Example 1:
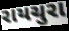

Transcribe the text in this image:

રાયચુરા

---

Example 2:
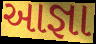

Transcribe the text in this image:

આજ્ઞા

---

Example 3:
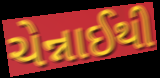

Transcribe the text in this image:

ચેન્નાઈથી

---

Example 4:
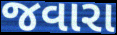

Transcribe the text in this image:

જવારા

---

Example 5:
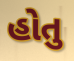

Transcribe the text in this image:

હોતુ